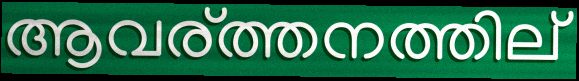
ആവര്ത്തനത്തില്